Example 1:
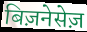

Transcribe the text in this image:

बिज़नेसेज़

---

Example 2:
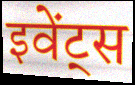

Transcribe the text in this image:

इवेंट्स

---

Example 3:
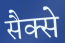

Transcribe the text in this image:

सैक्से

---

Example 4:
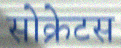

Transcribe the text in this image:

सोक्रेटस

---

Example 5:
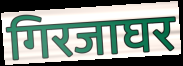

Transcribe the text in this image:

गिरजाघर